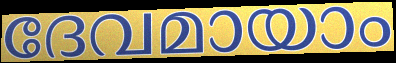
ദേവമായാം